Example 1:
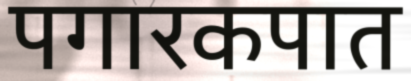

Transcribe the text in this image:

पगारकपात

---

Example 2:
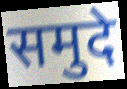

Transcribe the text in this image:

समुदे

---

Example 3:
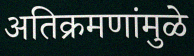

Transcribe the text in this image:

अतिक्रमणांमुळे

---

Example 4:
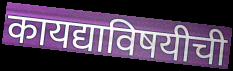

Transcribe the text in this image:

कायद्याविषयीची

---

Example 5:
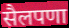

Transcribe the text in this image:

सैलपणा